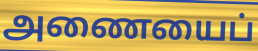
அணையைப்